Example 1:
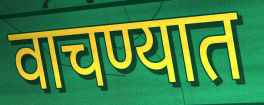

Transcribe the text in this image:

वाचण्यात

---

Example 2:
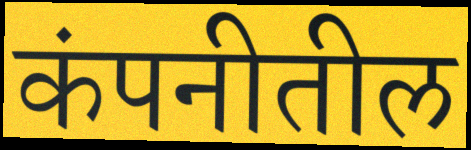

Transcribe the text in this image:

कंपनीतील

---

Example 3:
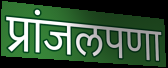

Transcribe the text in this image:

प्रांजलपणा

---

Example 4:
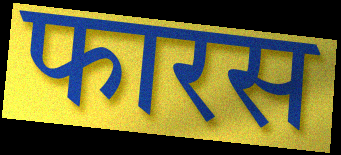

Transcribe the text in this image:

फारस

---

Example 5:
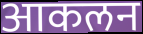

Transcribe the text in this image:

आकलन